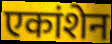
एकांशेन